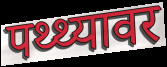
पथ्थ्यावर